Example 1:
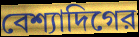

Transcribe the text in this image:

বেশ্যাদিগের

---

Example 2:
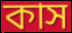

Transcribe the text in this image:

কাস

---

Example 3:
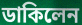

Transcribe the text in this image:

ডাকিলেন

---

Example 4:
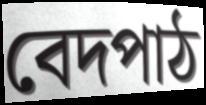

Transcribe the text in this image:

বেদপাঠ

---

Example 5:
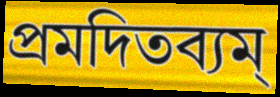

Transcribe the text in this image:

প্রমদিতব্যম্